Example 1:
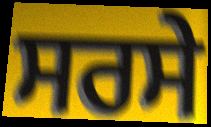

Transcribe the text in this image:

ਸਰਸੇ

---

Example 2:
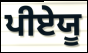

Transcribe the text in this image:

ਪੀਏਯੂ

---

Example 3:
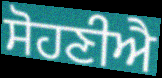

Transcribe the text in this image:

ਸੋਹਣੀਐ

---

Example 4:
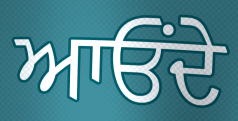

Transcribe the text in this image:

ਆਓਂਦੇ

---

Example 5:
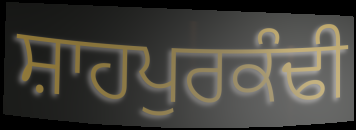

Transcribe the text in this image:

ਸ਼ਾਹਪੁਰਕੰਢੀ